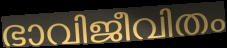
ഭാവിജീവിതം